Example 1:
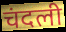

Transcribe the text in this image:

चंदली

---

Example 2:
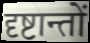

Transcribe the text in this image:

दृष्टान्तों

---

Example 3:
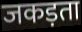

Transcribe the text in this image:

जकड़ता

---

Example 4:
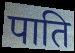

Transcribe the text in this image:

पाति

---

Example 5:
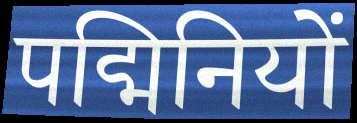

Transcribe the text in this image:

पद्मिनियों